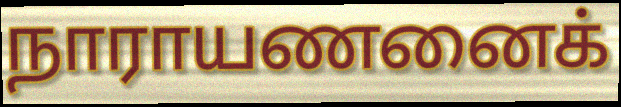
நாராயணனைக்